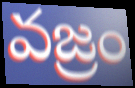
వజ్రం